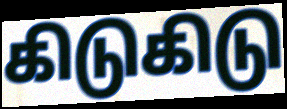
கிடுகிடு